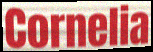
Cornelia